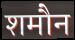
शमौन